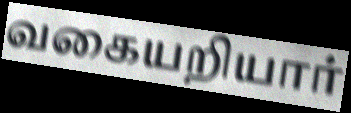
வகையறியார்